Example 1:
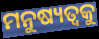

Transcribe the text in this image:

ମନୁଷ୍ୟତ୍ୱକୁ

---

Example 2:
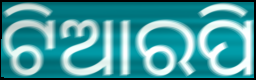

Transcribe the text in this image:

ଟିଆରପି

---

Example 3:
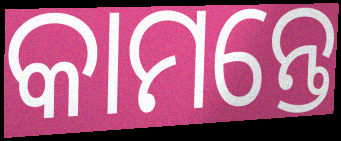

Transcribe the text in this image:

କାମନ୍ତେ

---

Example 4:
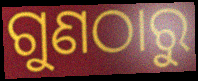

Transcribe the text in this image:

ଗୁଣଠାରୁ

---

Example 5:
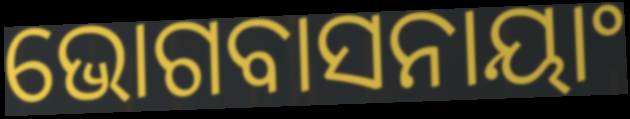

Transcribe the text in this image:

ଭୋଗବାସନାୟାଂ